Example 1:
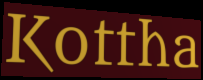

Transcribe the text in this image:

Kottha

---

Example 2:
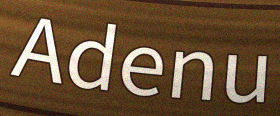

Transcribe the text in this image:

Adenu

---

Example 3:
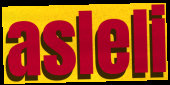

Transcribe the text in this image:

asleli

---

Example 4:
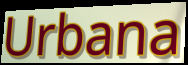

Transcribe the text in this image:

Urbana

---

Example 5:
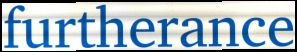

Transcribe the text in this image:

furtherance